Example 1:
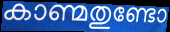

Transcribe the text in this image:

കാണ്മതുണ്ടോ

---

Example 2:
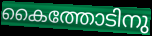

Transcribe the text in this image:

കൈത്തോടിനു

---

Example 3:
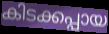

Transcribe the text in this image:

കിടക്കപ്പായ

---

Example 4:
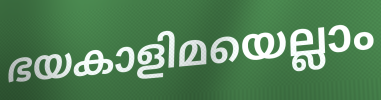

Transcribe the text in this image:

ഭയകാളിമയെല്ലാം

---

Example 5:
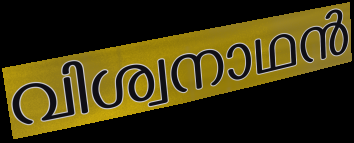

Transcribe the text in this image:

വിശ്വനാഥൻ